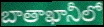
బాతాఖానీలో